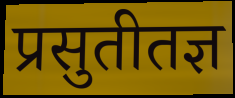
प्रसुतीतज्ञ